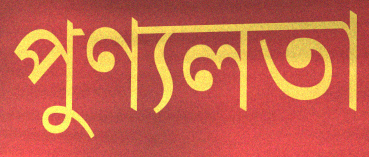
পুণ্যলতা